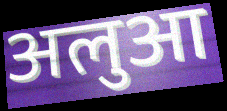
अलुआ